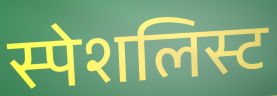
स्पेशलिस्ट